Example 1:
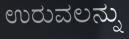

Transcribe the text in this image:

ಉರುವಲನ್ನು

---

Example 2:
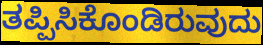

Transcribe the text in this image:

ತಪ್ಪಿಸಿಕೊಂಡಿರುವುದು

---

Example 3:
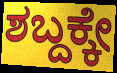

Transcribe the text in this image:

ಶಬ್ದಕ್ಕೇ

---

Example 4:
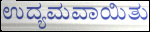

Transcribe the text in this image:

ಉದ್ಯಮವಾಯಿತು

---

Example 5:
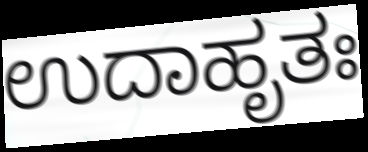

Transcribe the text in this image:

ಉದಾಹೃತಃ